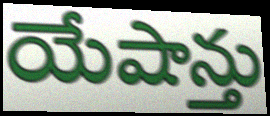
యేషాన్తు